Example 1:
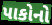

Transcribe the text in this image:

પાકોનો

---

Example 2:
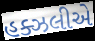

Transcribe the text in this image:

હક્ઝલીએ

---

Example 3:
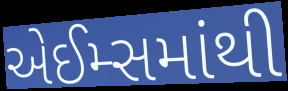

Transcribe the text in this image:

એઈમ્સમાંથી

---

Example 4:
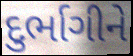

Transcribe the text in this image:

દુર્ભાગીને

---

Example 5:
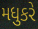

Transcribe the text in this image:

મધુકરે